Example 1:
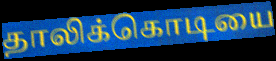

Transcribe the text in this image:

தாலிக்கொடியை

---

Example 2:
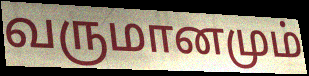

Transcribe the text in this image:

வருமானமும்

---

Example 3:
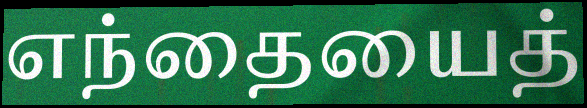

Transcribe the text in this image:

எந்தையைத்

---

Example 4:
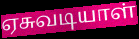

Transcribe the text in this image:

ஏசுவடியாள்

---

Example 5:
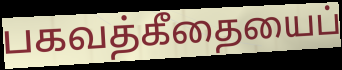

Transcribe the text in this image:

பகவத்கீதையைப்